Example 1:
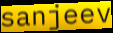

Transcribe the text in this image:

sanjeev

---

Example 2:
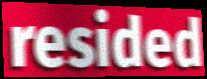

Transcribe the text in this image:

resided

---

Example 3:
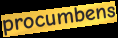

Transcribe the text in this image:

procumbens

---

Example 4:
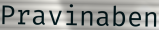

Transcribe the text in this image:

Pravinaben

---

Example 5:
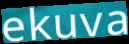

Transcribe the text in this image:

ekuva